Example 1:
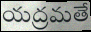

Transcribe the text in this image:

యద్రమతే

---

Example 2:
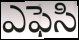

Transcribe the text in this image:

ఎఫెసి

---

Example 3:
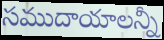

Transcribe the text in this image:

సముదాయాలన్నీ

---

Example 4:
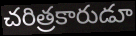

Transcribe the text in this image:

చరిత్రకారుడూ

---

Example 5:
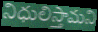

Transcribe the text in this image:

నిధులిస్తామని